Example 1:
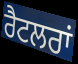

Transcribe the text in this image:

ਰੈਟਲਰਾਂ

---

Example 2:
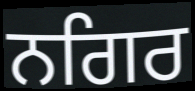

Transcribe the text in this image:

ਨਗਿਰ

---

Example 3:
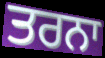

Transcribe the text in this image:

ਤਰਨਾ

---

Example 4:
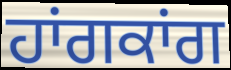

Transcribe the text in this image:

ਹਾਂਗਕਾਂਗ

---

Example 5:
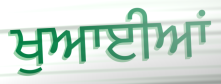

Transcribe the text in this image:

ਖੁਆਈਆਂ